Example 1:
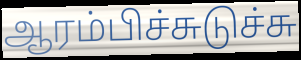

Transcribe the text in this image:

ஆரம்பிச்சுடுச்சு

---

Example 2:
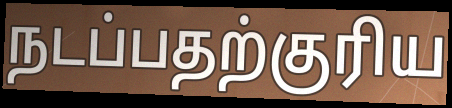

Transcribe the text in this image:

நடப்பதற்குரிய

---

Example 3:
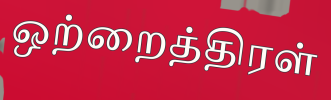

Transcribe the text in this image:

ஒற்றைத்திரள்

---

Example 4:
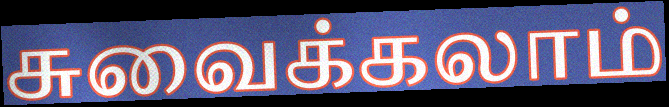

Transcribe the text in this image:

சுவைக்கலாம்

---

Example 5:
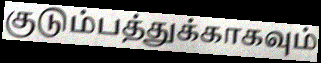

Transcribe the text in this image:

குடும்பத்துக்காகவும்